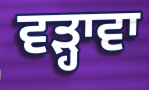
ਵੜ੍ਹਾਵਾ